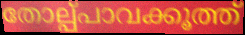
തോല്പ്പാവക്കൂത്ത്